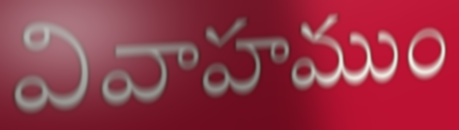
వివాహముం